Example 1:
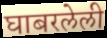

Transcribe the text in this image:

घाबरलेली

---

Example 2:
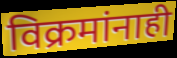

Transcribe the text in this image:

विक्रमांनाही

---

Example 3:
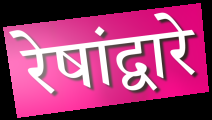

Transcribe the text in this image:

रेषांद्वारे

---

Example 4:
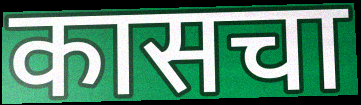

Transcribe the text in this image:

कासचा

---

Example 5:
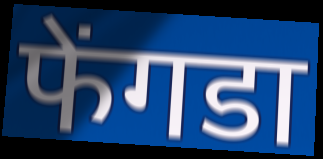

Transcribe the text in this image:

फेंगडा